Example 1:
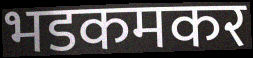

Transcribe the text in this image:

भडकमकर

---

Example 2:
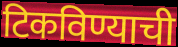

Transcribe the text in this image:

टिकविण्याची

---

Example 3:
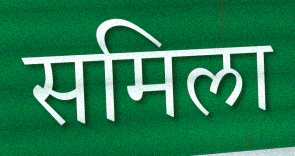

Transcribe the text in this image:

समिला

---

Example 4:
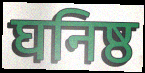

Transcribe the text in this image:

घनिष्ठ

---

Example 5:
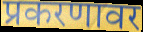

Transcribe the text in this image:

प्रकरणावर